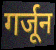
गर्जून